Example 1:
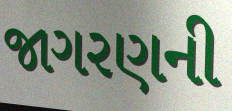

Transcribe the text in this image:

જાગરણની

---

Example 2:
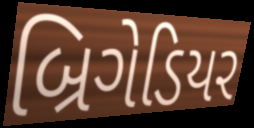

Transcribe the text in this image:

બ્રિગેડિયર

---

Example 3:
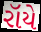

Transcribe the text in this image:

રૉયે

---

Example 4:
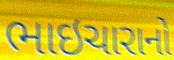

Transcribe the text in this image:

ભાઇચારાનો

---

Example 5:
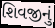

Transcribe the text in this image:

શિવજીનું